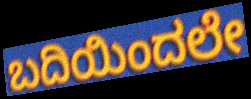
ಬದಿಯಿಂದಲೇ